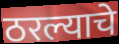
ठरल्याचे